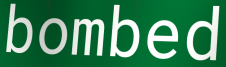
bombed